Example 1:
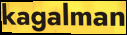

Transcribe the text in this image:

kagalman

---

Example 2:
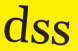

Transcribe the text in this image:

dss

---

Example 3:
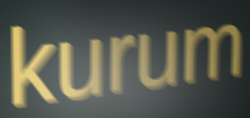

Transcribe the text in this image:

kurum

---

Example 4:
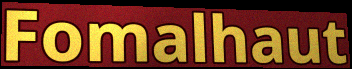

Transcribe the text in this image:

Fomalhaut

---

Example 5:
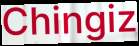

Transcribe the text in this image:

Chingiz